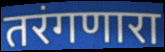
तरंगणारा